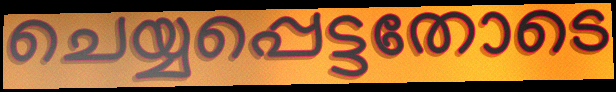
ചെയ്യപ്പെട്ടതോടെ